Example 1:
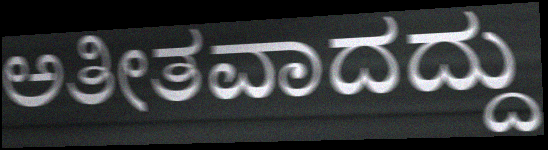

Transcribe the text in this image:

ಅತೀತವಾದದ್ದು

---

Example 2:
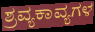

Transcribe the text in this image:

ಶ್ರವ್ಯಕಾವ್ಯಗಳ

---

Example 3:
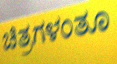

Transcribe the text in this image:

ಚಿತ್ರಗಳಂತೂ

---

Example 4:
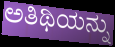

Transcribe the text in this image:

ಅತಿಥಿಯನ್ನು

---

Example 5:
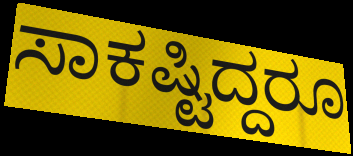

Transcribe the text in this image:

ಸಾಕಷ್ಟಿದ್ದರೂ